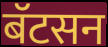
बॅटसन